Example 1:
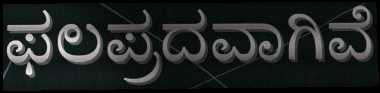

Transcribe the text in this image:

ಫಲಪ್ರದವಾಗಿವೆ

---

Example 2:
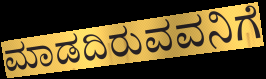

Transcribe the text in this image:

ಮಾಡದಿರುವವನಿಗೆ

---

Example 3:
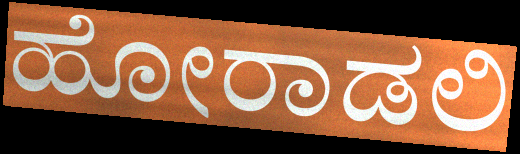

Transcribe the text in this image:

ಹೋರಾಡಲಿ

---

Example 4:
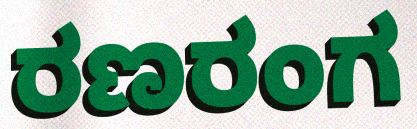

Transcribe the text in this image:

ರಣರಂಗ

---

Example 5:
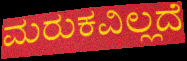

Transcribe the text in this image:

ಮರುಕವಿಲ್ಲದೆ